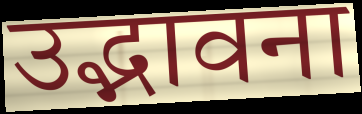
उद्भावना